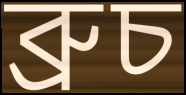
ব্ৰুচ